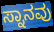
ಸ್ನಾನವು